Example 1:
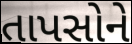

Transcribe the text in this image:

તાપસોને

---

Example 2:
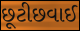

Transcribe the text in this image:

છૂટીછવાઈ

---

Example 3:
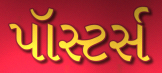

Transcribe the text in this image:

પૉસ્ટર્સ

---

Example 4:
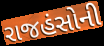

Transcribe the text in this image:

રાજહંસોની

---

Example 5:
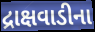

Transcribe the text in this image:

દ્રાક્ષવાડીના